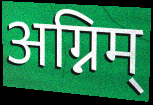
अग्निम्